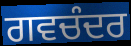
ਗਵਚੰਦਰ